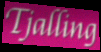
Tjalling